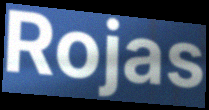
Rojas